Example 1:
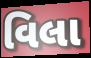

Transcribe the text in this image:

વિલા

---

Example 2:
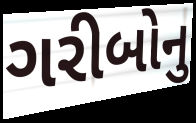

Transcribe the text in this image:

ગરીબોનુ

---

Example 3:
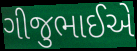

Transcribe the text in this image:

ગીજુભાઈએ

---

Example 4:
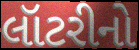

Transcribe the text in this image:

લૉટરીનો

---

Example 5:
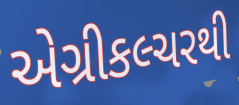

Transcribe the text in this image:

એગ્રીકલ્ચરથી